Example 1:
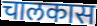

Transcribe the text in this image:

चालकास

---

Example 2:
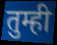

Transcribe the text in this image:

तुम्ही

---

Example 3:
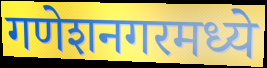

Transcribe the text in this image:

गणेशनगरमध्ये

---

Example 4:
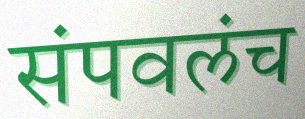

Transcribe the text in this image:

संपवलंच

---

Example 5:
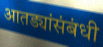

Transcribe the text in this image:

आतड्यांसंबंधी